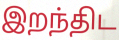
இறந்திட